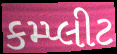
કમ્પ્લીટ